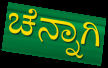
ಚೆನ್ನಾಗಿ